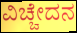
ವಿಚ್ಚೇದನ